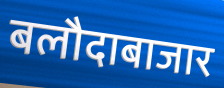
बलौदाबाजार